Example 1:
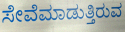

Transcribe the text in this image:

ಸೇವೆಮಾಡುತ್ತಿರುವ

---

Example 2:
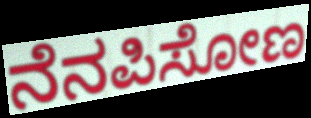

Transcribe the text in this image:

ನೆನಪಿಸೋಣ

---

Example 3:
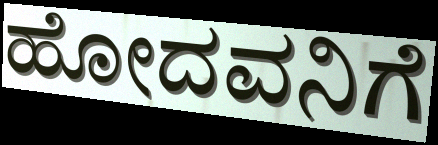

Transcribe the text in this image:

ಹೋದವನಿಗೆ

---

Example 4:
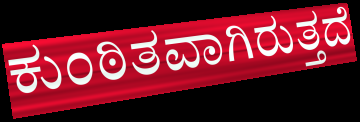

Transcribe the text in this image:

ಕುಂಠಿತವಾಗಿರುತ್ತದೆ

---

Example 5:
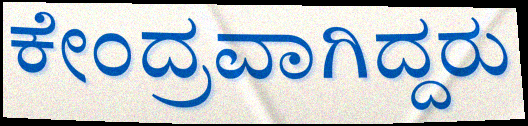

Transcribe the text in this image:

ಕೇಂದ್ರವಾಗಿದ್ದರು